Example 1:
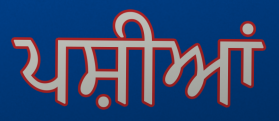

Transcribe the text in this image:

ਪਸ਼ੀਆਂ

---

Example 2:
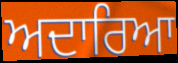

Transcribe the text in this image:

ਅਦਾਰਿਆ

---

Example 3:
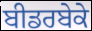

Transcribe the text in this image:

ਬੀਡਰਬੇਕੇ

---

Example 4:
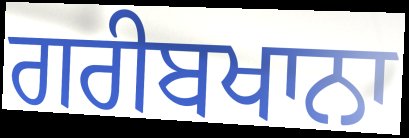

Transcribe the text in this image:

ਗਰੀਬਖਾਨਾ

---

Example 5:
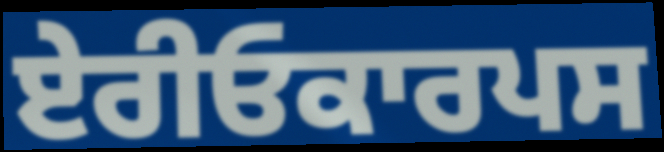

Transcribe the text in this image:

ਏਰੀਓਕਾਰਪਸ